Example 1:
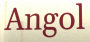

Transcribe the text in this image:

Angol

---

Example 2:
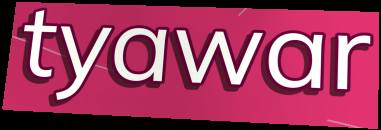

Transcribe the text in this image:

tyawar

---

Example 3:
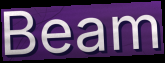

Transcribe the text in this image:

Beam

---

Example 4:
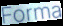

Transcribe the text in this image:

Forma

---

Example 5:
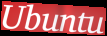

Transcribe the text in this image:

Ubuntu